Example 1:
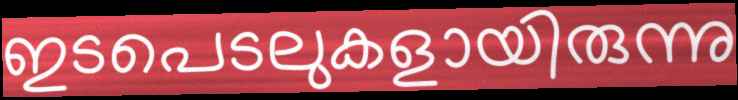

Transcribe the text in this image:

ഇടപെടലുകളായിരുന്നു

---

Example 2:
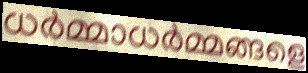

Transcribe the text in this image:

ധർമ്മാധർമ്മങ്ങളെ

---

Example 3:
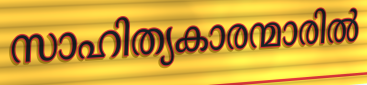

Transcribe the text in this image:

സാഹിത്യകാരന്മാരിൽ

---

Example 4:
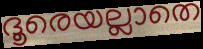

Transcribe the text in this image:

ദൂരെയല്ലാതെ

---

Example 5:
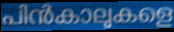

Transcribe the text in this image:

പിൻകാലുകളെ